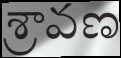
శ్రావణ